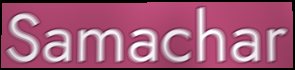
Samachar